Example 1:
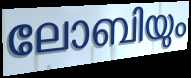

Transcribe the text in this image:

ലോബിയും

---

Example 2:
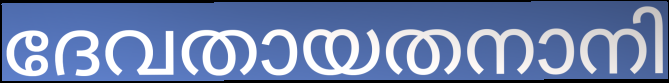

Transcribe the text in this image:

ദേവതായതനാനി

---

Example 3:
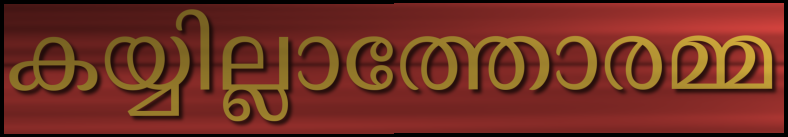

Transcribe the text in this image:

കയ്യില്ലാത്തോരമ്മ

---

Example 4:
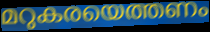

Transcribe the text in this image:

മറുകരയെത്തണം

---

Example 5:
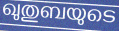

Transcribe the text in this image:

ഖുതുബയുടെ